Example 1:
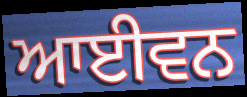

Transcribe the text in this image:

ਆਈਵਨ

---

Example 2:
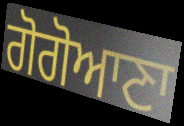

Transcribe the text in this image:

ਗੋਗੋਆਣਾ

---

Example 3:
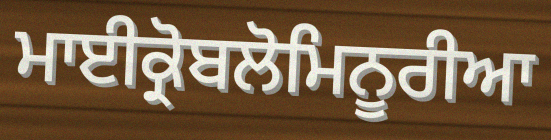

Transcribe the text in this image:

ਮਾਈਕ੍ਰੋਬਲੋਮਿਨੂਰੀਆ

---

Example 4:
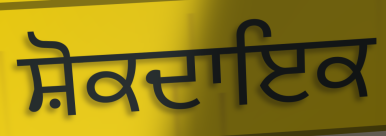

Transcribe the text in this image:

ਸ਼ੋਕਦਾਇਕ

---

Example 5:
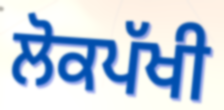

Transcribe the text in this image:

ਲੋਕਪੱਖੀ